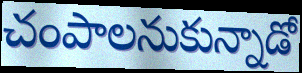
చంపాలనుకున్నాడో